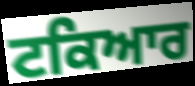
ਟਕਿਆਰ